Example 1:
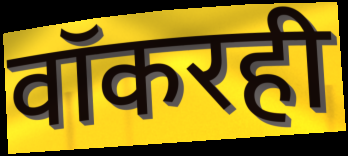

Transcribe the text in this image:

वॉकरही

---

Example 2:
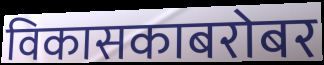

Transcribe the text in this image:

विकासकाबरोबर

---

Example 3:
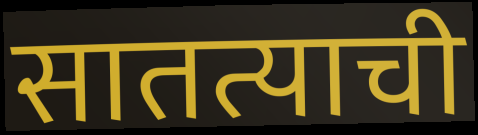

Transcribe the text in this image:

सातत्याची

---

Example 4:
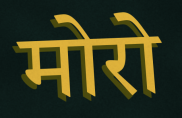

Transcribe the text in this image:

मोरो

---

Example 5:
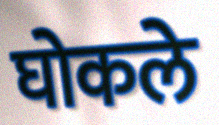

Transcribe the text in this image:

घोकले